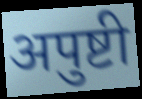
अपुष्टी